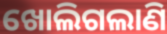
ଖୋଲିଗଲାଣି